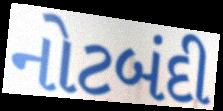
નોટબંદી